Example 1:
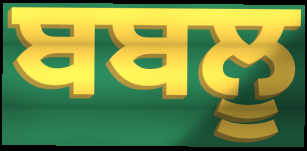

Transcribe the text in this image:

ਬਬਲੂ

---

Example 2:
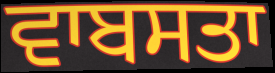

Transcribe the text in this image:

ਵਾਬਸਤਾ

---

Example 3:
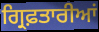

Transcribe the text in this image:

ਗ੍ਰਿਫ਼ਤਾਰੀਆਂ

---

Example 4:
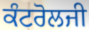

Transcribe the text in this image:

ਕੰਟਰੋਲਜੀ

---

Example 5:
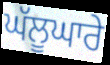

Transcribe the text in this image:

ਘੱਲੂਘਾਰੇ